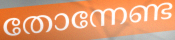
തോന്നേണ്ട